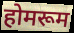
होमरूम